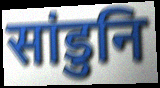
सांडुनि